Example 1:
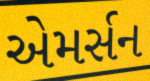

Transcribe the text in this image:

એમર્સન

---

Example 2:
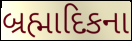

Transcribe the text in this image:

બ્રહ્માદિકના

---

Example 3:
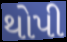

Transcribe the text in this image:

થોપી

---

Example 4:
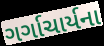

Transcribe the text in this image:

ગર્ગાચાર્યના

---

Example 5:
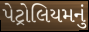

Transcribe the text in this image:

પેટ્રોલિયમનું